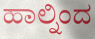
ಹಾಲ್ನಿಂದ